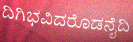
ದಿಗಿಭವಿದರೊಡನೈದಿ